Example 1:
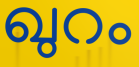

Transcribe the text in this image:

ഖുറം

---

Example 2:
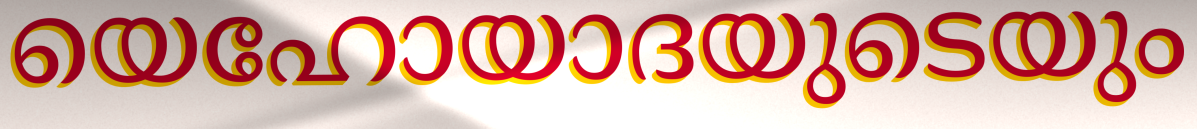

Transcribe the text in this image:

യെഹോയാദയുടെയും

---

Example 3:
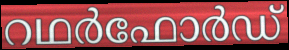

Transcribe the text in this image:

റഥർഫോർഡ്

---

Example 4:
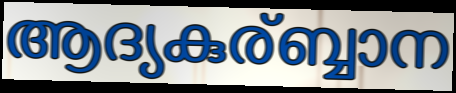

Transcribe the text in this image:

ആദ്യകുര്ബ്ബാന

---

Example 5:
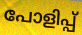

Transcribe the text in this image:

പോളിപ്പ്